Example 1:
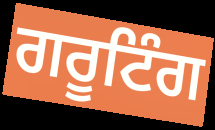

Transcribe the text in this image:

ਗਰੂਟਿੰਗ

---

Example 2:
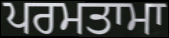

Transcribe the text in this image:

ਪਰਮਤਾਮਾ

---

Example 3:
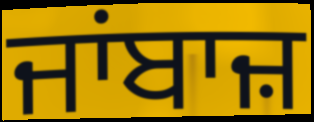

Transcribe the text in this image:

ਜਾਂਬਾਜ਼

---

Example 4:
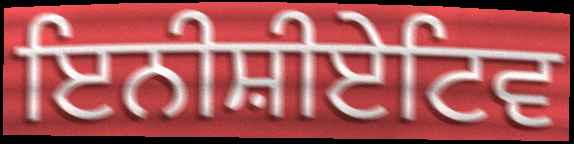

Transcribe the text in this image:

ਇਨੀਸ਼ੀਏਟਿਵ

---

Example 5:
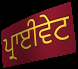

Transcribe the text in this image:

ਪ੍ਰਾਈਵੇਟ